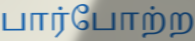
பார்போற்ற